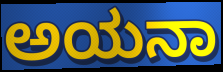
ಅಯನಾ